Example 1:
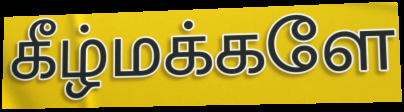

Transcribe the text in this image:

கீழ்மக்களே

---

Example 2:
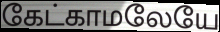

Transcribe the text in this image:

கேட்காமலேயே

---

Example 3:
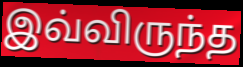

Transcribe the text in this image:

இவ்விருந்த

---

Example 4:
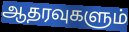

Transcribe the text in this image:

ஆதரவுகளும்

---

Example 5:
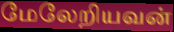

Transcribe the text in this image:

மேலேறியவன்